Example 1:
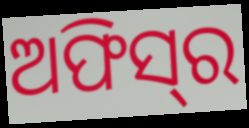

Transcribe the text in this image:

ଅଫିସ୍‌ର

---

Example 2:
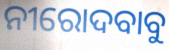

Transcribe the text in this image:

ନୀରୋଦବାବୁ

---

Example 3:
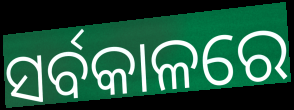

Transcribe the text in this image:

ସର୍ବକାଳରେ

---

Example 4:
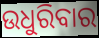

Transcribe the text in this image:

ଉଧୁରିବାର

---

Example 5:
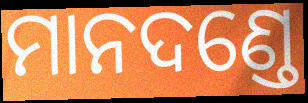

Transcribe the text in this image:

ମାନଦଣ୍ଡେ